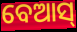
ବେଆସ୍